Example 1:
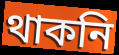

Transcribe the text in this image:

থাকনি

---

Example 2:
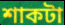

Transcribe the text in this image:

শাকটা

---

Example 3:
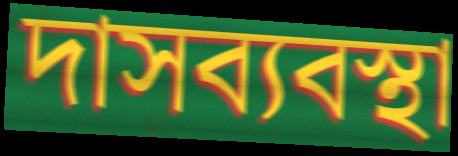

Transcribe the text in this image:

দাসব্যবস্থা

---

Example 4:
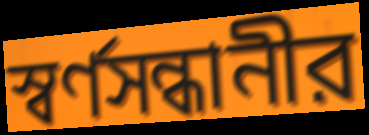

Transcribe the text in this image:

স্বর্ণসন্ধানীর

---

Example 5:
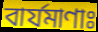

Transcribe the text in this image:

বার্যমাণাঃ